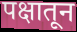
पक्षातून